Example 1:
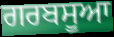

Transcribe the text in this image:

ਗਰਬਸੂਆ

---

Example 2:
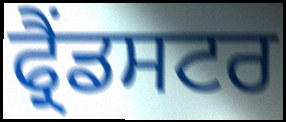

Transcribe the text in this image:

ਫ੍ਰੈਂਡਸਟਰ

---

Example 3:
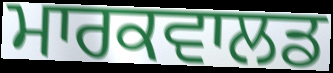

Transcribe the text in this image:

ਮਾਰਕਵਾਲਡ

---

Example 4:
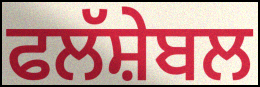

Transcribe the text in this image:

ਫਲੱਸ਼ੇਬਲ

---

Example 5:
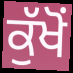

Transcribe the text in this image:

ਕੁੱਖੋਂ